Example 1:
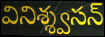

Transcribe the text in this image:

వినిశ్శ్వసన్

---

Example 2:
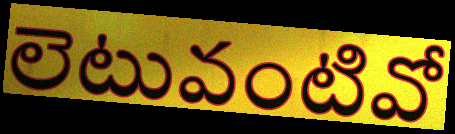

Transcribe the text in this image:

లెటువంటివో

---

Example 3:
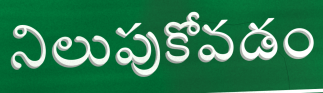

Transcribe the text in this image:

నిలుపుకోవడం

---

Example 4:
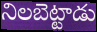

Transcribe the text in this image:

నిలబెట్టాడు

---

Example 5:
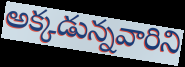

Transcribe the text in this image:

అక్కడున్నవారిని